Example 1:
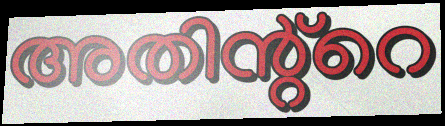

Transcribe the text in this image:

അതിന്റ്റെ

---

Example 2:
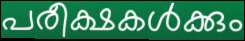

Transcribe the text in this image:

പരീക്ഷകൾക്കും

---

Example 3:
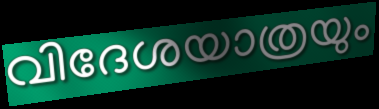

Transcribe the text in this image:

വിദേശയാത്രയും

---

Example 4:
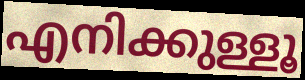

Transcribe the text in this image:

എനിക്കുള്ളൂ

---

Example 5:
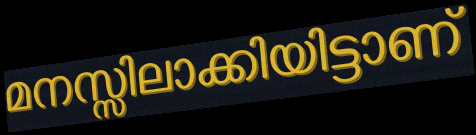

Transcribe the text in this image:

മനസ്സിലാക്കിയിട്ടാണ്